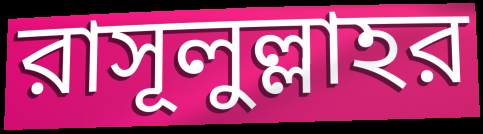
রাসূলুল্লাহর